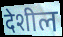
देशील